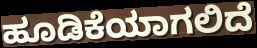
ಹೂಡಿಕೆಯಾಗಲಿದೆ